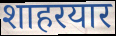
शाहरयार